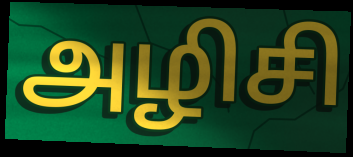
அழிசி